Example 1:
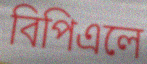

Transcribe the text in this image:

বিপিএলে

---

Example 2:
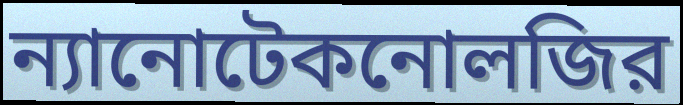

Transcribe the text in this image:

ন্যানোটেকনোলজির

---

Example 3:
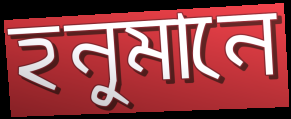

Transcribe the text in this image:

হনুমানে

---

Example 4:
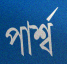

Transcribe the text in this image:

পার্শ্ব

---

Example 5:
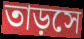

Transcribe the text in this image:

তাড়সে